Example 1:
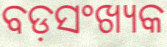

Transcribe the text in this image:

ବଡ଼ସଂଖ୍ୟକ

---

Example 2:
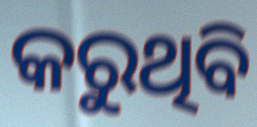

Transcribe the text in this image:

କରୁଥିବି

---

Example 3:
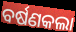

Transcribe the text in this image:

ବର୍ଷଣକଲା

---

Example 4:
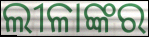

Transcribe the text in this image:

ଲୀଳାଙ୍କର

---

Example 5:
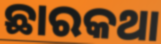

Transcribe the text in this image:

ଛାରକଥା